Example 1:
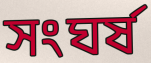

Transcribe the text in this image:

সংঘৰ্ষ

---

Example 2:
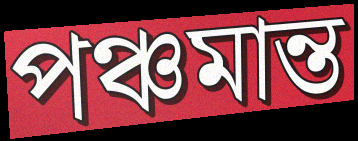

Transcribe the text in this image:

পঞ্চমান্ত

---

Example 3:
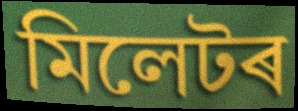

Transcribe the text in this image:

মিলেটৰ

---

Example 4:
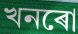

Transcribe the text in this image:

খনৰো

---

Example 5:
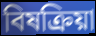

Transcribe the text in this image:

বিষক্ৰিয়া